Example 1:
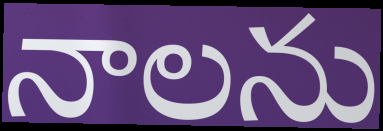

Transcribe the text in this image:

నాలను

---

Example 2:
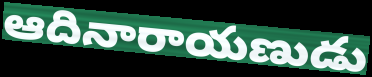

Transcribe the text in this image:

ఆదినారాయణుడు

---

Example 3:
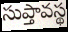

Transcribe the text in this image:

సుప్తావస్థ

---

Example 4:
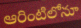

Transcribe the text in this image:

ఆరింటిలోనూ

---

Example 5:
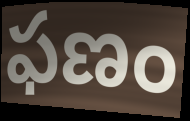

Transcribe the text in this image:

ఫణం